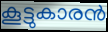
കൂട്ടുകാരൻ